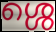
ശ്ശെ